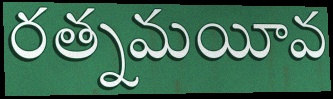
రత్నమయీవ